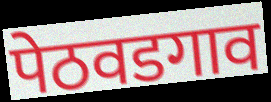
पेठवडगाव